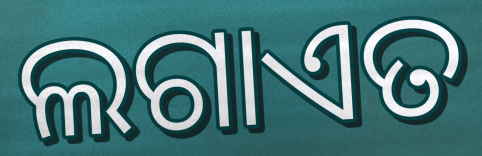
ଲଗାଏତ